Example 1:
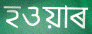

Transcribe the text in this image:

হওয়াৰ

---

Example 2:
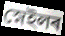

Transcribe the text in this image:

স্নেইলৰ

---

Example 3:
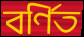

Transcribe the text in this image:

বৰ্ণিত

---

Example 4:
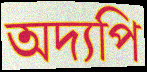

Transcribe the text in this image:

অদ্যপি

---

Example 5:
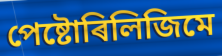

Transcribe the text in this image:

পেষ্টোৰিলিজিমে